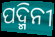
ପଦ୍ମିନୀ